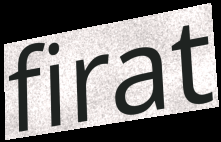
firat